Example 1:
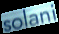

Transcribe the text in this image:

solani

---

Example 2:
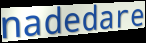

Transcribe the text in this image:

nadedare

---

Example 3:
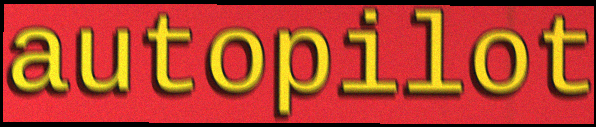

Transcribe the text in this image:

autopilot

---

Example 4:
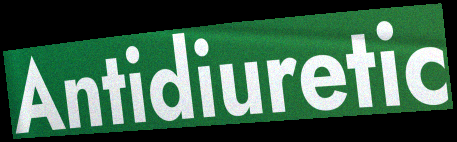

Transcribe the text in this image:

Antidiuretic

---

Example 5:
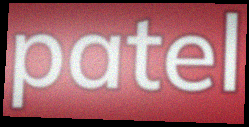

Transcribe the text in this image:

patel